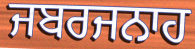
ਜਬਰਜਨਾਹ